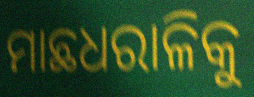
ମାଛଧରାଳିକୁ